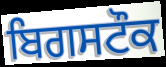
ਬਿਗਸਟੌਕ